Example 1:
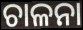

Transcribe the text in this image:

ଚାଳନା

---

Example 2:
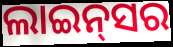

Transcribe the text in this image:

ଲାଇନ୍‌ସର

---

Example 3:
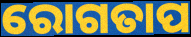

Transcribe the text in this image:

ରୋଗତାପ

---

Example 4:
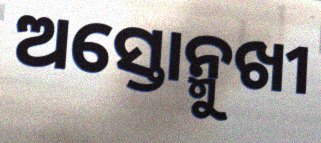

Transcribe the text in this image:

ଅସ୍ତୋନ୍ମୁଖୀ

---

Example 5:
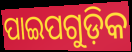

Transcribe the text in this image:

ପାଇପଗୁଡ଼ିକ